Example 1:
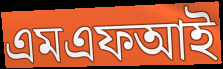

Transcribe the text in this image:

এমএফআই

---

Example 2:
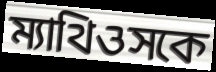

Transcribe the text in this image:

ম্যাথিওসকে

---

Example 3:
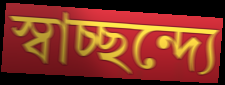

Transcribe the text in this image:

স্বাচ্ছন্দ্যে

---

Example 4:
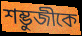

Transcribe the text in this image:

শম্ভুজীকে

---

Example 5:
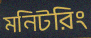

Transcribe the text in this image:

মনিটরিং